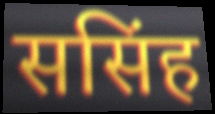
ससिंह